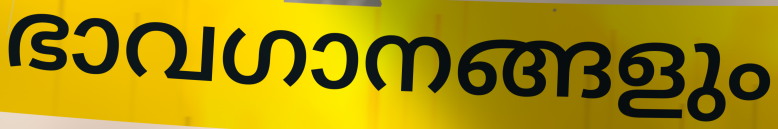
ഭാവഗാനങ്ങളും